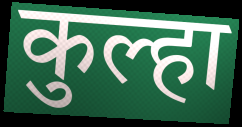
कुल्हा